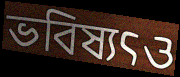
ভবিষ্যৎও